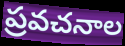
ప్రవచనాల